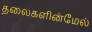
தலைகளின்மேல்